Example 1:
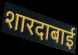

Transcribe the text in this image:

शारदाबाई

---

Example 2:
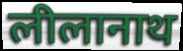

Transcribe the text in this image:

लीलानाथ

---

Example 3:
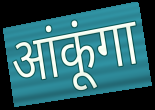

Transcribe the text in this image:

आंकूंगा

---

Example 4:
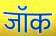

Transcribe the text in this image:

जॉक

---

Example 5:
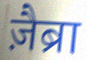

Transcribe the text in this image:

ज़ैब्रा